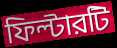
ফিল্টারটি